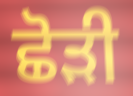
ਛੋੜੀ